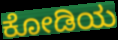
ಕೋಡಿಯ